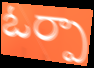
ఓర్పా